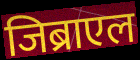
जिब्राएल